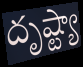
దృష్ట్యా